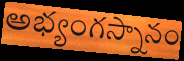
అభ్యంగస్నానం